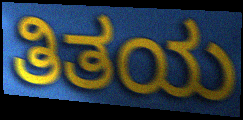
ತಿತಯ